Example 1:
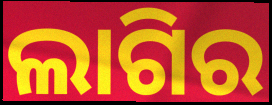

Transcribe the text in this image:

ଲାଗିର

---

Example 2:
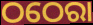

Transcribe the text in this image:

ଠଠେରା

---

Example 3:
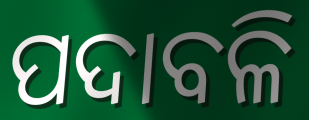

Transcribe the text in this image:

ପଦାବଳି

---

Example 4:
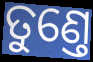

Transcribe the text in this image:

ତୁଣ୍ତେ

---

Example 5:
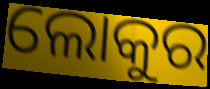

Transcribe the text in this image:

ଲୋକୁର